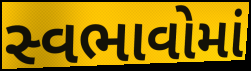
સ્વભાવોમાં